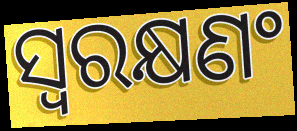
ସ୍ୱରକ୍ଷଣଂ